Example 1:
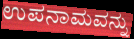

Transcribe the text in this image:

ಉಪನಾಮವನ್ನು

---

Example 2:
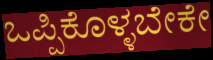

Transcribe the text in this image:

ಒಪ್ಪಿಕೊಳ್ಳಬೇಕೇ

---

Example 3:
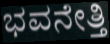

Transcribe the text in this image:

ಭವನೇತ್ತಿ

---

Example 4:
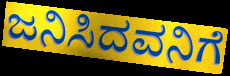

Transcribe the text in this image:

ಜನಿಸಿದವನಿಗೆ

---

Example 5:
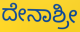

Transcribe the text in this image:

ದೇನಾಶ್ರೀ